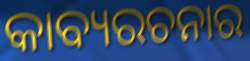
କାବ୍ୟରଚନାର